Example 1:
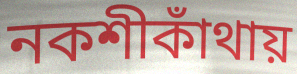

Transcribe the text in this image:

নকশীকাঁথায়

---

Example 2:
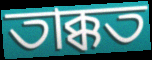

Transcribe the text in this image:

তাক্কত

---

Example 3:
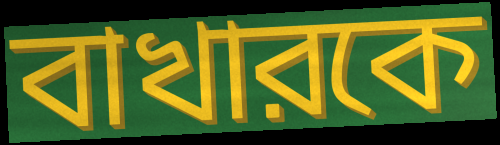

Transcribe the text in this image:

বাখারকে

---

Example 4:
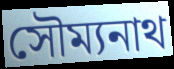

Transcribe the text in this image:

সৌম্যনাথ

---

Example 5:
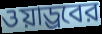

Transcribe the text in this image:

ওয়াড্রবের